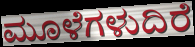
ಮೂಳೆಗಳುದಿರೆ